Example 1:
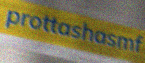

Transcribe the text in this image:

prottashasmf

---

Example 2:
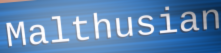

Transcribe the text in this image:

Malthusian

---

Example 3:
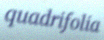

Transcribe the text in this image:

quadrifolia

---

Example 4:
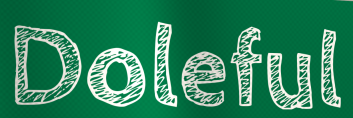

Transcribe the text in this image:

Doleful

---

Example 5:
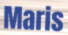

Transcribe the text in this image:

Maris